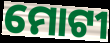
ମୋଟୀ